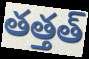
తత్తత్